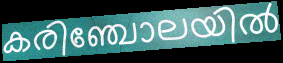
കരിഞ്ചോലയിൽ